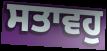
ਸਤਾਵਹੁ